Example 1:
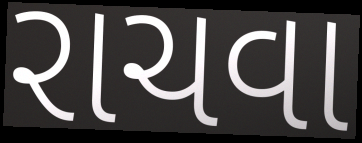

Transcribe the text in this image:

રાચવા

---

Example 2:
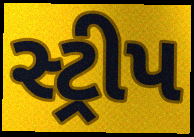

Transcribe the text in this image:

સ્ટ્રીપ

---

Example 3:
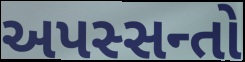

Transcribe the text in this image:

અપસ્સન્તો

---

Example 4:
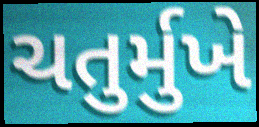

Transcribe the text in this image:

ચતુર્મુખે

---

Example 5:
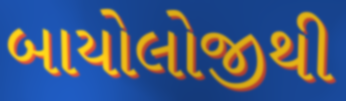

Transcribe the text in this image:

બાયોલોજીથી